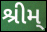
શ્રીમ્